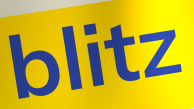
blitz